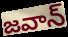
జవాన్